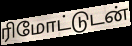
ரிமோட்டுடன்